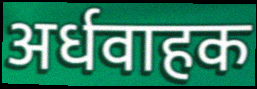
अर्धवाहक